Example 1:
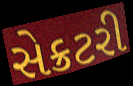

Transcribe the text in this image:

સેક્રટરી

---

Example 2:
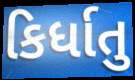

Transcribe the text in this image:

કિર્ધાતુ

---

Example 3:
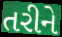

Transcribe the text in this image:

તરીને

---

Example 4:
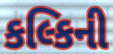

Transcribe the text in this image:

કલ્કિની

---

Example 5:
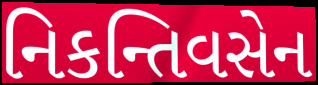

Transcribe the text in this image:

નિકન્તિવસેન